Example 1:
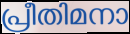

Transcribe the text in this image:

പ്രീതിമനാ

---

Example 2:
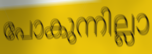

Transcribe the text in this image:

പോകുന്നില്ലാ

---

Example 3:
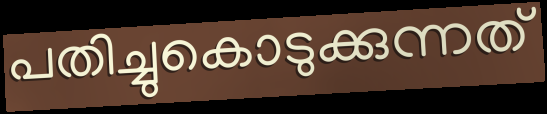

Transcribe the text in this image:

പതിച്ചുകൊടുക്കുന്നത്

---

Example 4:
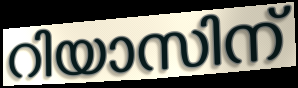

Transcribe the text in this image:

റിയാസിന്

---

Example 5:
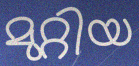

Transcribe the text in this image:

മുറ്റിയ